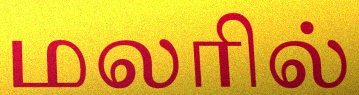
மலரில்